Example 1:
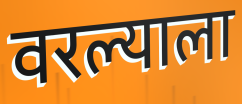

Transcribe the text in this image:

वरल्याला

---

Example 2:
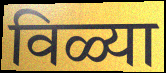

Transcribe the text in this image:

विळ्या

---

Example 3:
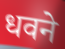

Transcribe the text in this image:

धवने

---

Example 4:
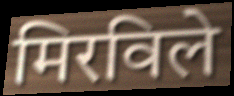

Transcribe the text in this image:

मिरविले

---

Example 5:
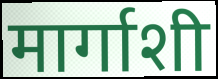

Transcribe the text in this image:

मार्गाशी